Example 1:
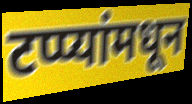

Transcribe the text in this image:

टप्प्यांमधून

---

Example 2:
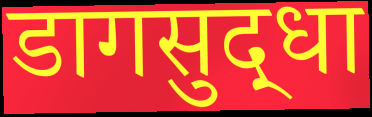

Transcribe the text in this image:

डागसुद्धा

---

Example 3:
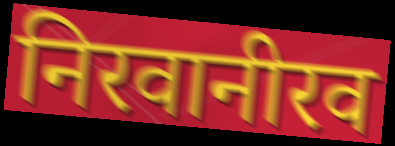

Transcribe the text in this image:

निरवानीरव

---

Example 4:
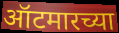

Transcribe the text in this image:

ऑटमारच्या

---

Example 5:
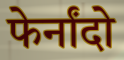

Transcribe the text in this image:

फेर्नांदो